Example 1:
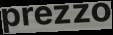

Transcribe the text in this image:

prezzo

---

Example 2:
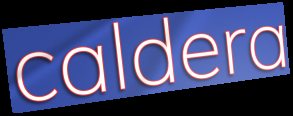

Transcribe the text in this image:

caldera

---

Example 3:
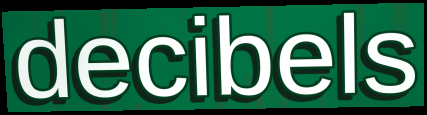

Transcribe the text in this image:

decibels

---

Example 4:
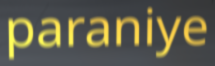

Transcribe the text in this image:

paraniye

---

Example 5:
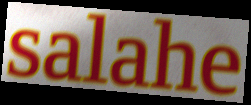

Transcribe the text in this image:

salahe